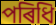
পৰিধি